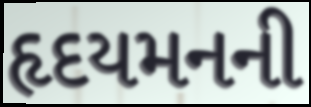
હૃદયમનની